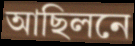
আছিলনে